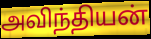
அவிந்தியன்